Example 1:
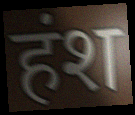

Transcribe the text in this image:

हंश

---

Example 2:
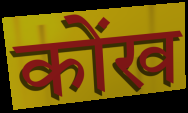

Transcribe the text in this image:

कोंख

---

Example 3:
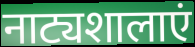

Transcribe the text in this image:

नाट्यशालाएं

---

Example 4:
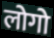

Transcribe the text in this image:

लोगो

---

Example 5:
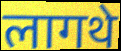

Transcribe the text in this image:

लागथे